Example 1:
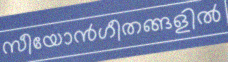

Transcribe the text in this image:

സീയോൻഗീതങ്ങളിൽ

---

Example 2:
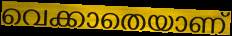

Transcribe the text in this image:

വെക്കാതെയാണ്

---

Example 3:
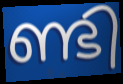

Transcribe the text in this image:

ണ്ടി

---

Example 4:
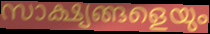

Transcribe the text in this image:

സാക്ഷ്യങ്ങളെയും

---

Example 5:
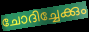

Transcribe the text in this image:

ചോദിച്ചേക്കും